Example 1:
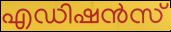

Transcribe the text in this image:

എഡിഷൻസ്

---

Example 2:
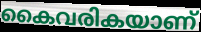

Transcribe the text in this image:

കൈവരികയാണ്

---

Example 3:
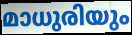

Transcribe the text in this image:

മാധുരിയും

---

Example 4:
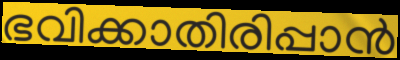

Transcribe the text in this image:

ഭവിക്കാതിരിപ്പാൻ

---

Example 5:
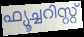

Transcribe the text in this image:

ഫ്യൂച്ചറിസ്റ്റ്